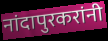
नांदापुरकरांनी